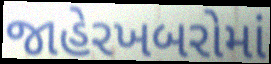
જાહેરખબરોમાં